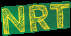
NRT